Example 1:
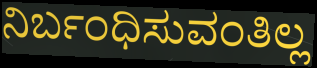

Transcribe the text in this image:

ನಿರ್ಬಂಧಿಸುವಂತಿಲ್ಲ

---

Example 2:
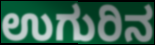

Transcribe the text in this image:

ಉಗುರಿನ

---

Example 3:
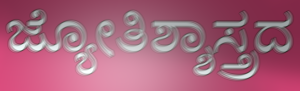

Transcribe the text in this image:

ಜ್ಯೋತಿಶ್ಶಾಸ್ತ್ರದ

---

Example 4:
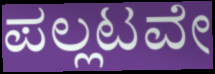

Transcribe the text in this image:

ಪಲ್ಲಟವೇ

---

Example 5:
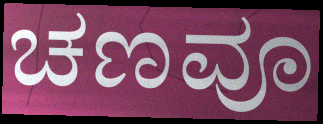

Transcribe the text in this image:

ಚಣವೂ